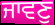
ਜਾਵਣੁ